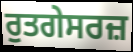
ਰੁਤਗੇਸਰਜ਼